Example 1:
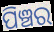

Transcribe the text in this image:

ପିଞ୍ଚର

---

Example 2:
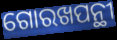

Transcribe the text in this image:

ଗୋରଖପନ୍ଥୀ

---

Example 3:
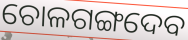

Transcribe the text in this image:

ଚୋଳଗଙ୍ଗଦେବ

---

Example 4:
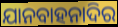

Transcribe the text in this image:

ଯାନବାହନାଦିର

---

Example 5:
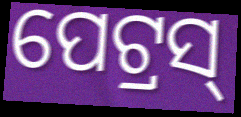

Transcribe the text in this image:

ପେଟ୍ରସ୍